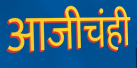
आजीचंही